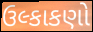
ઉલ્કાકણો